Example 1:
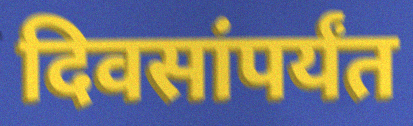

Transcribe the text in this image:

दिवसांपर्यंत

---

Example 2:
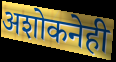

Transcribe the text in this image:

अशोकनेही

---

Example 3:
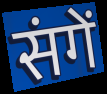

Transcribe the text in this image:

संगें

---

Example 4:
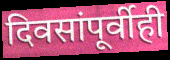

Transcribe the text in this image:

दिवसांपूर्वीही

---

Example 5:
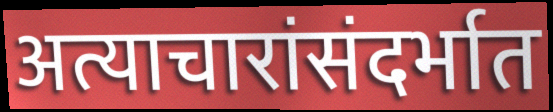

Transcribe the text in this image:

अत्याचारांसंदर्भात